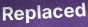
Replaced